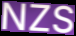
NZS